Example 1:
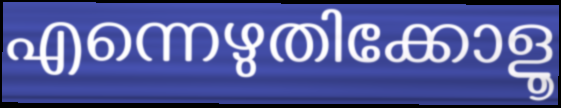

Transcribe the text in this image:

എന്നെഴുതിക്കോളൂ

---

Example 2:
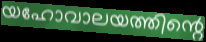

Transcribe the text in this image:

യഹോവാലയത്തിന്റെ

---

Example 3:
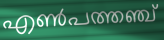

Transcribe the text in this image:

എൺപത്തഞ്ച്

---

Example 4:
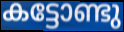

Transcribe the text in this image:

കട്ടോണ്ടു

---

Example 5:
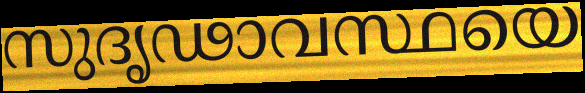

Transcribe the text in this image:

സുദൃഢാവസ്ഥയെ